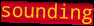
sounding